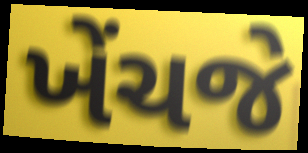
ખેંચજે